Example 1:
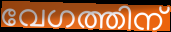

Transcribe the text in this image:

വേഗത്തിന്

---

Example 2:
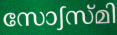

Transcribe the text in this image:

സോഽസ്മി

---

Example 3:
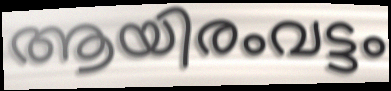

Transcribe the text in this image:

ആയിരംവട്ടം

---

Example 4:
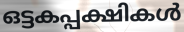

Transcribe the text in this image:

ഒട്ടകപ്പക്ഷികൾ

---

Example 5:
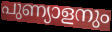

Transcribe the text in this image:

പുണ്യാളനും